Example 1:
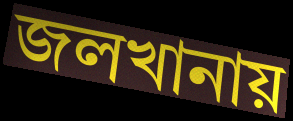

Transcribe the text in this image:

জলখানায়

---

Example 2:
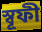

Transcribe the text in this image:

স্বূফী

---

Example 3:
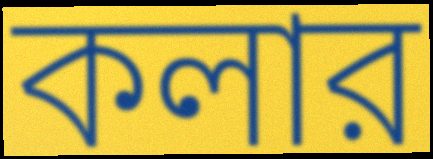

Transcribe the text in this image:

কলার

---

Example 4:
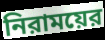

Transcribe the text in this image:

নিরাময়ের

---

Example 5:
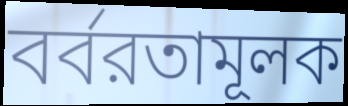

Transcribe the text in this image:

বর্বরতামূলক